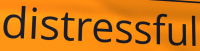
distressful